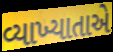
વ્યાખ્યાતાએ